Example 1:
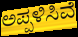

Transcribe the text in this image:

ಅಪ್ಪಳಿಸಿವೆ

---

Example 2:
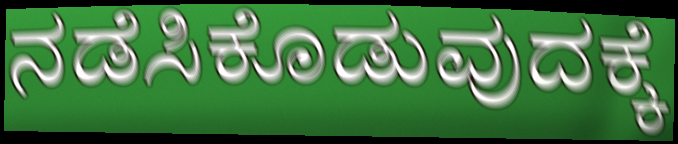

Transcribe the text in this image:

ನಡೆಸಿಕೊಡುವುದಕ್ಕೆ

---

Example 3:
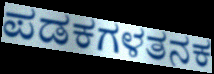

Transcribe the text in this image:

ಪಡಕಗಳತನಕ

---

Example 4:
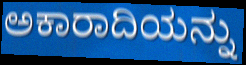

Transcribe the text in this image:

ಅಕಾರಾದಿಯನ್ನು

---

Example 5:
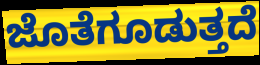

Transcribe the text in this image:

ಜೊತೆಗೂಡುತ್ತದೆ